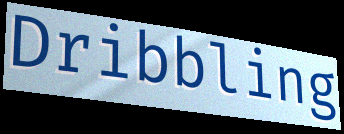
Dribbling